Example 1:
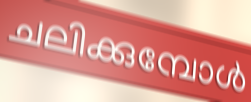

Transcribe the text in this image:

ചലിക്കുമ്പോൾ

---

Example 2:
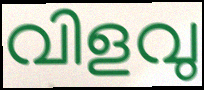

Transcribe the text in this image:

വിളവു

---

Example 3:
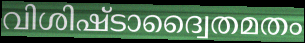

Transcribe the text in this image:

വിശിഷ്ടാദ്വൈതമതം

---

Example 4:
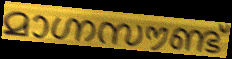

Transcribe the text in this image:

മാഗ്നസൗണ്ട്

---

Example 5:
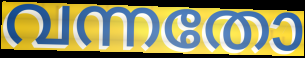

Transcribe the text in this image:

വന്നതോ